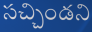
సచ్చిండని